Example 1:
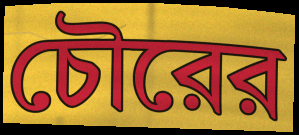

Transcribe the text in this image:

চৌরের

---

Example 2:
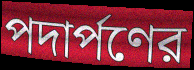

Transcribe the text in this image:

পদার্পণের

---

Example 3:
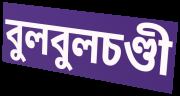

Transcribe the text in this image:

বুলবুলচণ্ডী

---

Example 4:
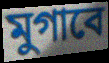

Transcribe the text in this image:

মুগাবে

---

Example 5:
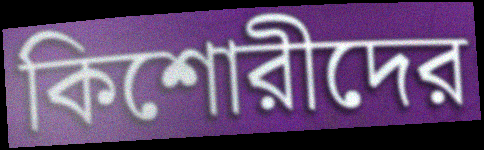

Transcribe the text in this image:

কিশোরীদের